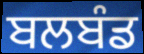
ਬਲਬੰਡ